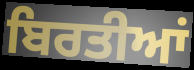
ਬਿਰਤੀਆਂ